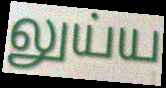
லுய்ய